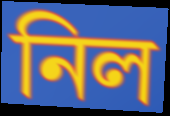
নিল